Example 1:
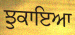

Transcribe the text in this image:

ਝੁਕਾਇਆ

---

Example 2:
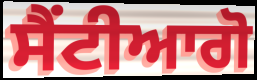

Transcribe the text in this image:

ਸੈਂਟੀਆਗੋ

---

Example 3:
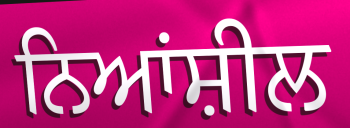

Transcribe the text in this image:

ਨਿਆਂਸ਼ੀਲ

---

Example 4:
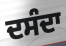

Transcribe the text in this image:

ਦਸੰਦਾ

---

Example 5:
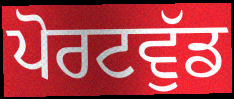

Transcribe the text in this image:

ਪੋਰਟਵੁੱਡ